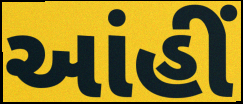
આંહીં